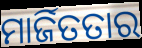
ମାର୍ଜିତତାର